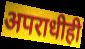
अपराधीही